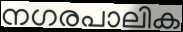
നഗരപാലിക